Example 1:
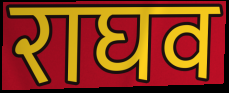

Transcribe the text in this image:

राघव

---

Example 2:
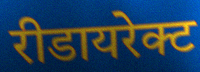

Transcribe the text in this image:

रीडायरेक्ट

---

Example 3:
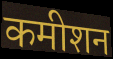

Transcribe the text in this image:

कमीशन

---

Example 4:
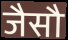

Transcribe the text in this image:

जैसौ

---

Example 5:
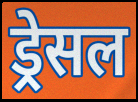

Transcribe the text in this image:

ड्रेसल